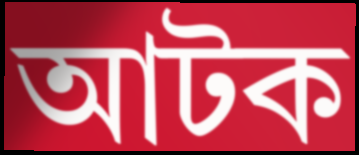
আটক